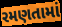
રમણતામાં